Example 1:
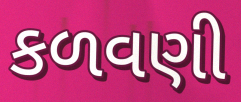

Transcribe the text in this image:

કળવણી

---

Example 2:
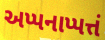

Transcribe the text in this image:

અપ્પનાપ્પત્તં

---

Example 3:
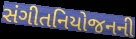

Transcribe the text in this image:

સંગીતનિયોજનની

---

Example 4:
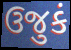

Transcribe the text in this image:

ઉજુકં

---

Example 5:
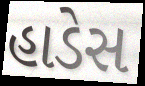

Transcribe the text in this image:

હાડેસ